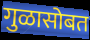
गुळासोबत